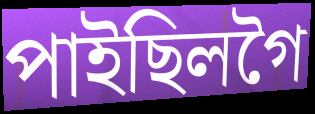
পাইছিলগৈ